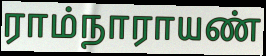
ராம்நாராயண்